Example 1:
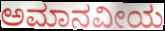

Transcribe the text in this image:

ಅಮಾನವೀಯ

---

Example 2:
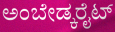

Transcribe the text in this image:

ಅಂಬೇಡ್ಕರೈಟ್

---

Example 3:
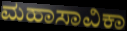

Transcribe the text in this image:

ಮಹಾಸಾವಿಕಾ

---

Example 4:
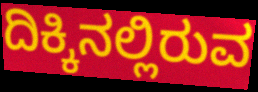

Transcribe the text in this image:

ದಿಕ್ಕಿನಲ್ಲಿರುವ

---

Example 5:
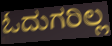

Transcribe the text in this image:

ಓದುಗರಿಲ್ಲ